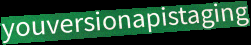
youversionapistaging